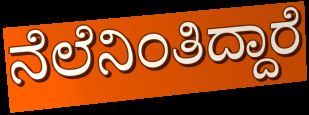
ನೆಲೆನಿಂತಿದ್ದಾರೆ